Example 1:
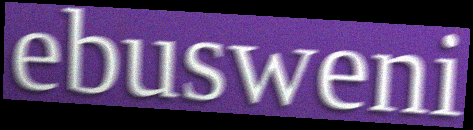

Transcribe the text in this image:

ebusweni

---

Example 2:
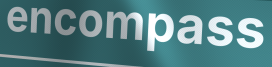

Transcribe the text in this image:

encompass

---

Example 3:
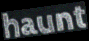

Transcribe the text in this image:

haunt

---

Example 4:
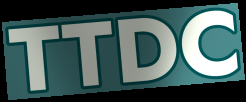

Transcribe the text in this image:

TTDC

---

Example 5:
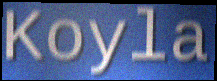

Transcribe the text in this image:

Koyla